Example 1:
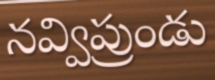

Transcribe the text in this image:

నవ్విప్రుండు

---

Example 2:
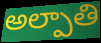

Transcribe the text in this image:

అల్పాతి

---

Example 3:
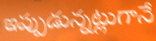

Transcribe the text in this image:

ఇప్పుడున్నట్లుగానే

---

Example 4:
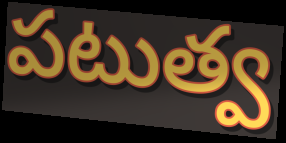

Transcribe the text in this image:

పటుత్వ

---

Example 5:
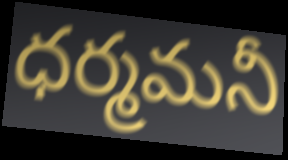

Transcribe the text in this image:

ధర్మమనీ